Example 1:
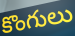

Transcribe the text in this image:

కొంగులు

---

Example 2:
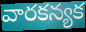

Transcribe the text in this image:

వారకన్యక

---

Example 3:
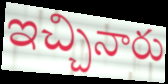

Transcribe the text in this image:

ఇచ్చినారు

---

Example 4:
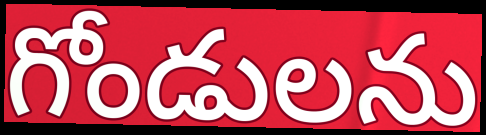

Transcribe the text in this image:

గోండులను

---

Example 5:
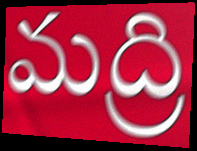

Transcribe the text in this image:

మద్రి